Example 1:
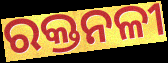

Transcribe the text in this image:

ରକ୍ତନଳୀ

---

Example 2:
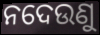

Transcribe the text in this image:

ନଦେଉଣୁ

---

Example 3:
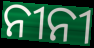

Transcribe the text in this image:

ନୀନୀ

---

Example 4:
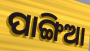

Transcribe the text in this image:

ପାଙ୍ଗିଆ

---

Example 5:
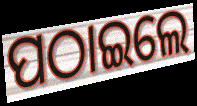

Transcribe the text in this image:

ପଠାଇଲେ